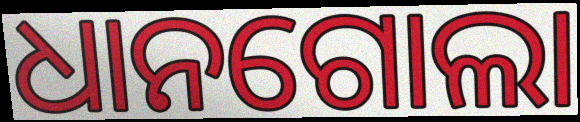
ଧାନଗୋଲା